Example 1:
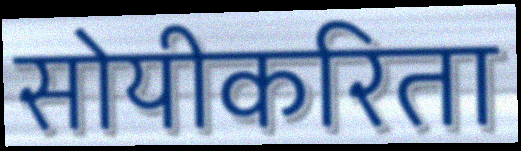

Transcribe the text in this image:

सोयीकरिता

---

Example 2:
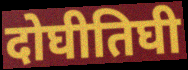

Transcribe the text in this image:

दोघीतिघी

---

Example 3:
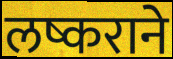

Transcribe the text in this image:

लष्कराने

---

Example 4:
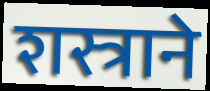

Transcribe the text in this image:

शस्त्राने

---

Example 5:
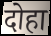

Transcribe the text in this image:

दोहा